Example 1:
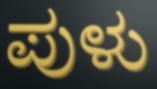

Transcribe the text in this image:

ಪುಳು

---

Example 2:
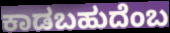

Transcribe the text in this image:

ಕಾಡಬಹುದೆಂಬ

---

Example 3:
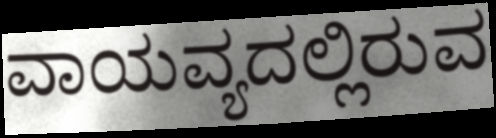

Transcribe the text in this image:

ವಾಯವ್ಯದಲ್ಲಿರುವ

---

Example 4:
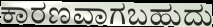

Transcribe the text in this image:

ಕಾರಣವಾಗಬಹುದು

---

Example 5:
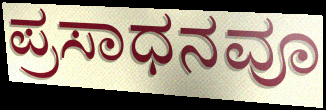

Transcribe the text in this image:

ಪ್ರಸಾಧನವೂ